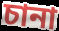
চানা